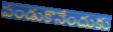
పండుకొనేందుకు